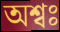
অশ্বঃ